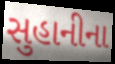
સુહાનીના